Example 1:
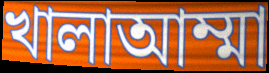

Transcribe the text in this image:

খালাআম্মা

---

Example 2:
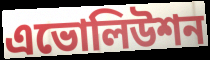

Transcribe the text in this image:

এভোলিউশন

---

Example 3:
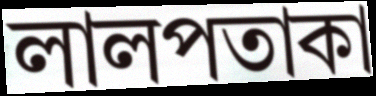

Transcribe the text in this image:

লালপতাকা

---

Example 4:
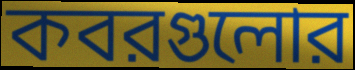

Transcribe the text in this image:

কবরগুলোর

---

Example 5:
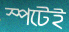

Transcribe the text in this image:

স্পটেই